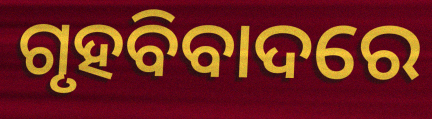
ଗୃହବିବାଦରେ